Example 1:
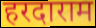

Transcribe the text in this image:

हरदाराम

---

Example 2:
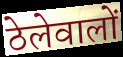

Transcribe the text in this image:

ठेलेवालों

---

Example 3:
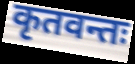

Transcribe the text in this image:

कृतवन्तः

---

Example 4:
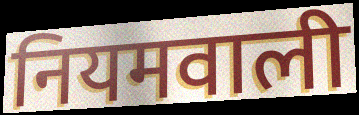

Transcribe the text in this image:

नियमवाली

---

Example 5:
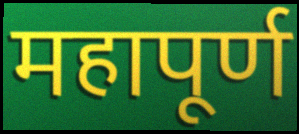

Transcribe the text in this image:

महापूर्ण